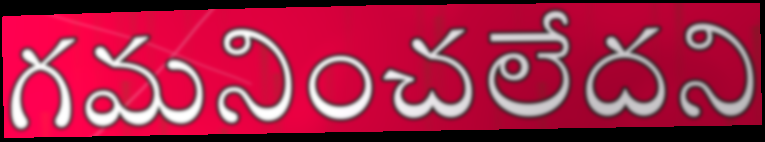
గమనించలేదని